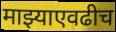
माझ्याएवढीच